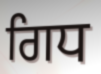
ਗਿਧ